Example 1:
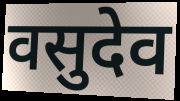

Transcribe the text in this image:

वसुदेव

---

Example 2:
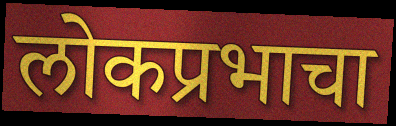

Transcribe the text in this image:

लोकप्रभाचा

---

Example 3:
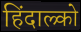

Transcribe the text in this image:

हिंदाल्को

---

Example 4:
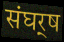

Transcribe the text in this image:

संघर्ष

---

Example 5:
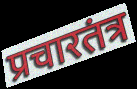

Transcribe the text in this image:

प्रचारतंत्र